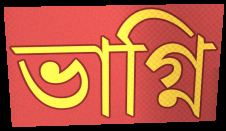
ভাগ্নি